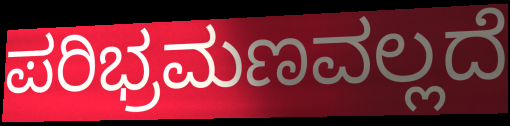
ಪರಿಭ್ರಮಣವಲ್ಲದೆ